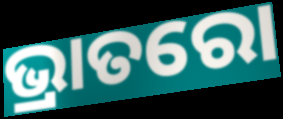
ଭ୍ରାତରୋ